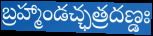
బ్రహ్మాండచ్ఛత్రదణ్డః